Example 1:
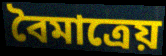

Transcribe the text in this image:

বৈমাত্রেয়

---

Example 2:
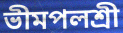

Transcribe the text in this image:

ভীমপলশ্রী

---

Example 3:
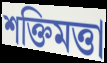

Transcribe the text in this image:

শক্তিমত্তা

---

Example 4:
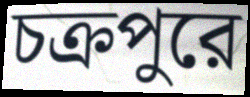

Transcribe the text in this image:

চক্রপুরে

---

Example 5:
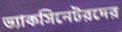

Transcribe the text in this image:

ভ্যাকসিনেটরদের